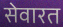
सेवारत